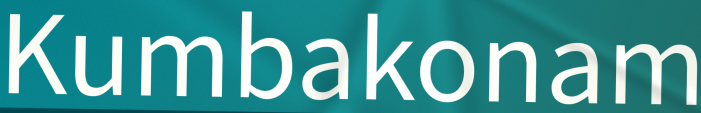
Kumbakonam